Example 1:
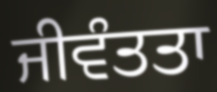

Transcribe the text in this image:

ਜੀਵੰਤਤਾ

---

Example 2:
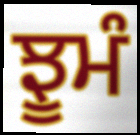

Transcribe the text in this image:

ਝੂਮੰ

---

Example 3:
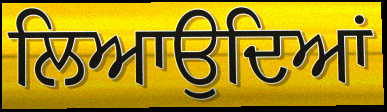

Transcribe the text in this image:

ਲਿਆਉਦਿਆਂ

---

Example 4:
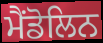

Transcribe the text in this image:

ਮੈਂਡੋਲਿਨ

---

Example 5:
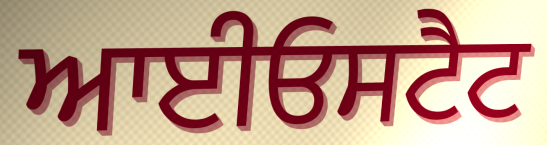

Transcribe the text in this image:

ਆਈਓਸਟੈਟ